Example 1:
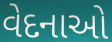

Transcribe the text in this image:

વેદનાઓ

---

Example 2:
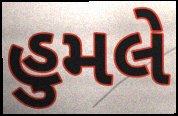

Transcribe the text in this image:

હુમલે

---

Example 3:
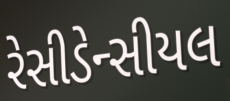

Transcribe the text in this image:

રેસીડેન્સીયલ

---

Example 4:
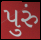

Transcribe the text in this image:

પુરું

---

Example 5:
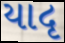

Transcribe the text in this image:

યાદૃ